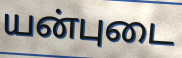
யன்புடை